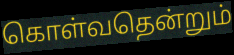
கொள்வதென்றும்